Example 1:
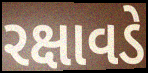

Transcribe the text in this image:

રક્ષાવડે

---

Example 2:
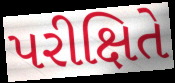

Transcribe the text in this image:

પરીક્ષિતે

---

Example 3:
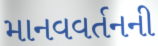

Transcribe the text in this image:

માનવવર્તનની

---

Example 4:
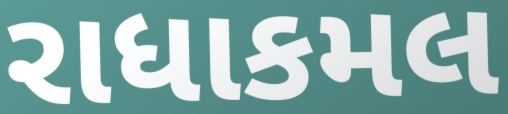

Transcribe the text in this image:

રાધાકમલ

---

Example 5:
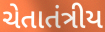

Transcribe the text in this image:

ચેતાતંત્રીય